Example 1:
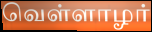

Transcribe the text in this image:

வெள்ளாழர்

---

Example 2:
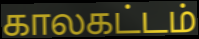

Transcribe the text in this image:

காலகட்டம்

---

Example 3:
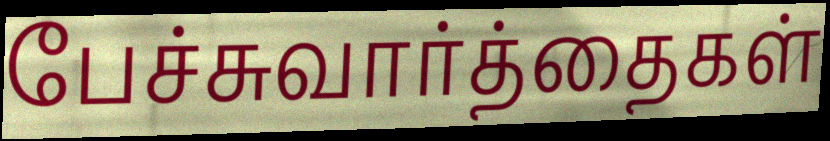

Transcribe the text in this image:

பேச்சுவார்த்தைகள்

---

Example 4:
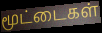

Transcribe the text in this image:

மூட்டைகள்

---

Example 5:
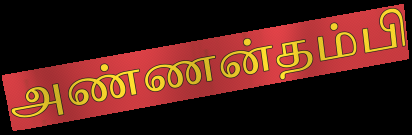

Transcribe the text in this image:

அண்ணன்தம்பி